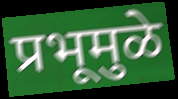
प्रभूमुळे